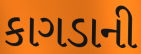
કાગડાની